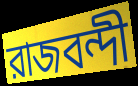
রাজবন্দী